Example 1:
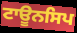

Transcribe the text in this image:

ਟਾਊਨਸਿਪ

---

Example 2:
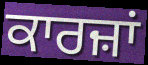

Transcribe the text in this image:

ਕਾਰਜ਼ਾਂ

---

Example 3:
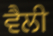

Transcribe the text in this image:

ਵੈਲੀ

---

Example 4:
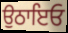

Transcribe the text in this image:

ਉਠਾਇਓ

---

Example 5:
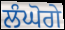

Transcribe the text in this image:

ਲੰਘੋਗੇ